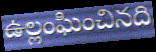
ఉల్లంఘించినది